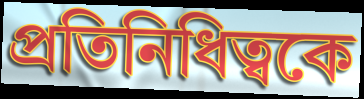
প্রতিনিধিত্বকে